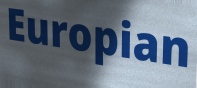
Europian